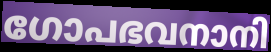
ഗോപഭവനാനി